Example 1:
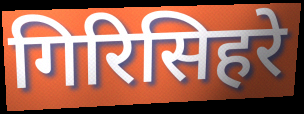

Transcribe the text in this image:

गिरिसिहरे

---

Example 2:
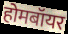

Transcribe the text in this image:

होमबॉयर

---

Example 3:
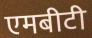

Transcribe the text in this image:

एमबीटी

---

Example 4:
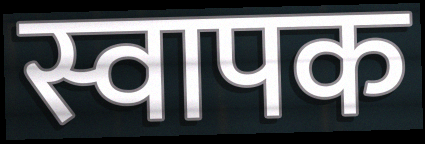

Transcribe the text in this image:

स्‍वापक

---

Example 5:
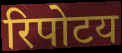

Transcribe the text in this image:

रिपोटय